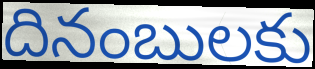
దినంబులకు